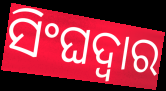
ସିଂଘଦ୍ୱାର